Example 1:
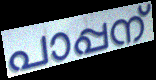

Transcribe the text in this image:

പാപ്പന്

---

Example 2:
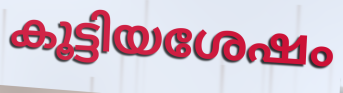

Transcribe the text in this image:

കൂട്ടിയശേഷം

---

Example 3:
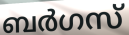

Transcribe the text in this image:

ബർഗസ്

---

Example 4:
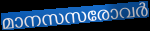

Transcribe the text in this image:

മാനസസരോവർ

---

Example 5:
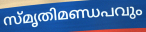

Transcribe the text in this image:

സ്മൃതിമണ്ഡപവും